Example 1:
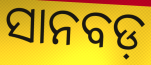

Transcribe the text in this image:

ସାନବଡ଼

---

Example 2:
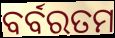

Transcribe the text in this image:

ବର୍ବରତମ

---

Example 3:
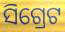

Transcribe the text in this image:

ସିଗ୍ରେଟ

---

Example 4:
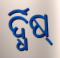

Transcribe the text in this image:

ର୍ଦ୍ଧିଷ୍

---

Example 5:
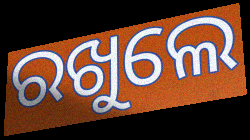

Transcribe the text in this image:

ରଖୁଲେ